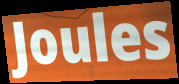
Joules